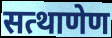
सत्थाणेण